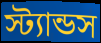
স্ট্যান্ডস